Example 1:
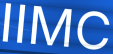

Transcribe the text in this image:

IIMC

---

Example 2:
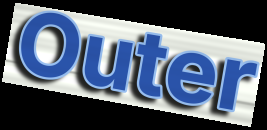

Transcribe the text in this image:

Outer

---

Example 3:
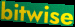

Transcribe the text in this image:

bitwise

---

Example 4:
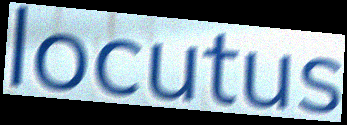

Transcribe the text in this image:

locutus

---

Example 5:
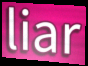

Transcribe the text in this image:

liar